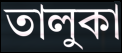
তালুকা